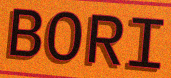
BORI